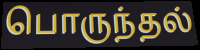
பொருந்தல்